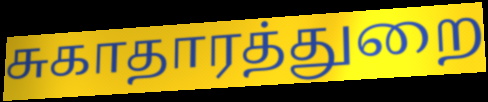
சுகாதாரத்துறை